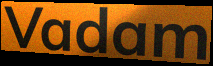
Vadam